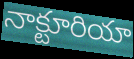
నాక్టూరియా